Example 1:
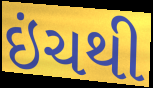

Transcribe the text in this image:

ઇંચથી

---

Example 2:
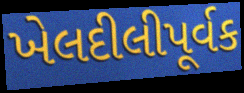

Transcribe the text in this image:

ખેલદીલીપૂર્વક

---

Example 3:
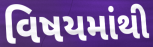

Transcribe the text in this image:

વિષયમાંથી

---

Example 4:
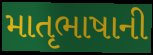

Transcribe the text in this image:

માતૃભાષાની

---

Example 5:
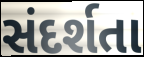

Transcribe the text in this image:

સંદર્શતા